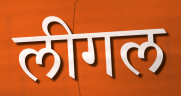
लीगल